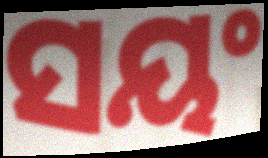
ସୟଂ